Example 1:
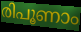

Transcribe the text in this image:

രിപൂണാം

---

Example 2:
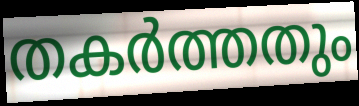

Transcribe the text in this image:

തകർത്തതും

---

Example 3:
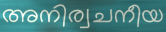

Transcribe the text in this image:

അനിര്വചനീയ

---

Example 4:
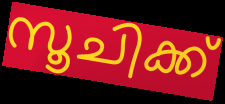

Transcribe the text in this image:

സൂചിക്ക്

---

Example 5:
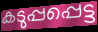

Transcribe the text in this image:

കടുപ്പപ്പെട്ട